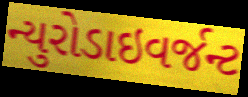
ન્યુરોડાઇવર્જન્ટ